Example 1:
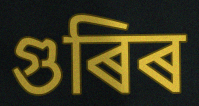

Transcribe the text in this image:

গুৰিৰ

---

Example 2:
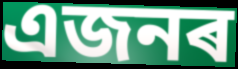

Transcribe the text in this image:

এজনৰ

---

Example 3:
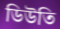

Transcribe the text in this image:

ডিউতি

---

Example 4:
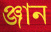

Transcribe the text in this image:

ঞ্জান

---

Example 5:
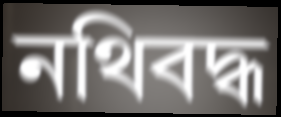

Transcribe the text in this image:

নথিবদ্ধ